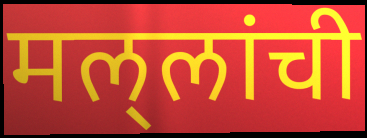
मल्लांची